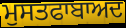
ਮੁਸਤਫਾਬਾਅਦ